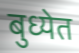
बुध्येत